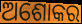
ଅଶୋକର